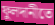
ফুলদানীতে